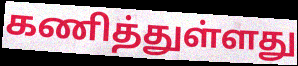
கணித்துள்ளது